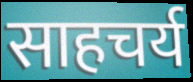
साहचर्य